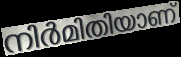
നിർമിതിയാണ്